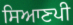
ਸਿਆਣਪੀ